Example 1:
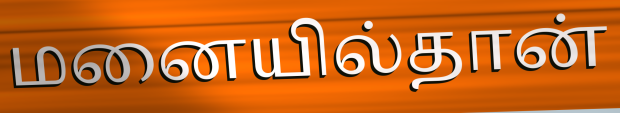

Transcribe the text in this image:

மனையில்தான்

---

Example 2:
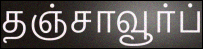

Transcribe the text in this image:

தஞ்சாவூர்ப்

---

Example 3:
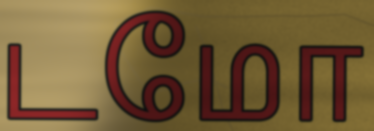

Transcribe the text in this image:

டமோ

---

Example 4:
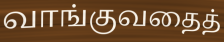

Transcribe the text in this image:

வாங்குவதைத்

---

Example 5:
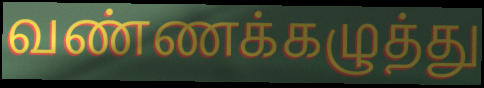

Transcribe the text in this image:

வண்ணக்கழுத்து